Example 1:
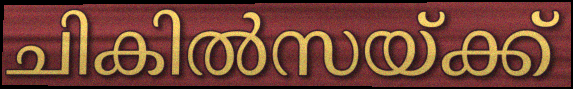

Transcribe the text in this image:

ചികിൽസയ്ക്ക്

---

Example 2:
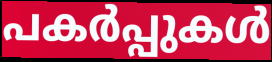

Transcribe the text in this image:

പകർപ്പുകൾ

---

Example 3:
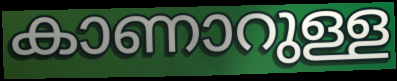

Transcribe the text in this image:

കാണാറുള്ള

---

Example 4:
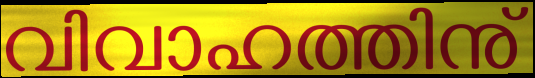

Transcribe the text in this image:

വിവാഹത്തിനു്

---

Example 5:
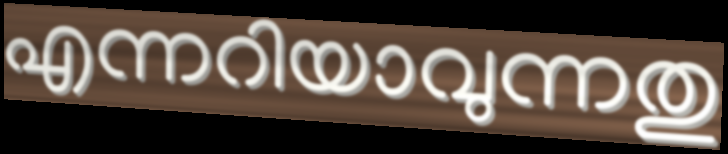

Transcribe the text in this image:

എന്നറിയാവുന്നതു